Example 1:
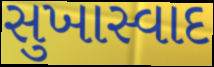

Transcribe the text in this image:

સુખાસ્વાદ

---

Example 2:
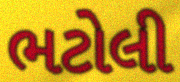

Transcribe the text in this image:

ભટોલી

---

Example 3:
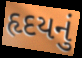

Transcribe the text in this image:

હૃદયનું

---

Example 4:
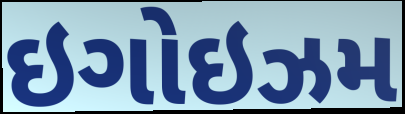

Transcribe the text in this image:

ઇગોઇઝમ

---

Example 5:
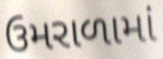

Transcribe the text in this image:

ઉમરાળામાં